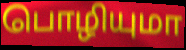
பொழியுமா